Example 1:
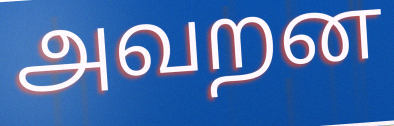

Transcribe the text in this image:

அவறன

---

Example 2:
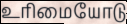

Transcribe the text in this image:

உரிமையோடு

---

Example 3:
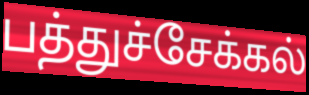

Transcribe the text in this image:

பத்துச்சேக்கல்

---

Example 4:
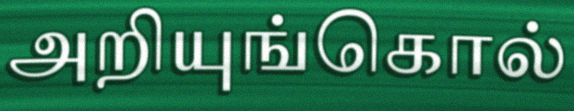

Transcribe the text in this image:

அறியுங்கொல்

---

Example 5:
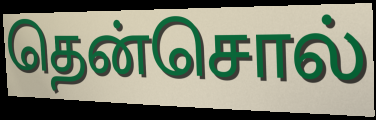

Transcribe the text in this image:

தென்சொல்